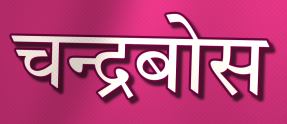
चन्द्रबोस